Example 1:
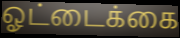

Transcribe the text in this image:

ஓட்டைக்கை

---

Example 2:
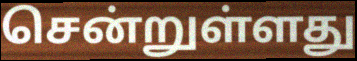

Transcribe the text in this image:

சென்றுள்ளது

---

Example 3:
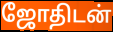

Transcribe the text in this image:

ஜோதிடன்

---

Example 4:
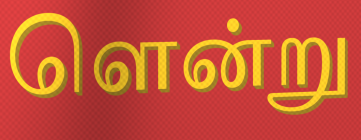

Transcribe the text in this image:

ளென்று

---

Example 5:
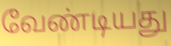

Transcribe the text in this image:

வேண்டியது